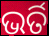
ଭର୍ତି